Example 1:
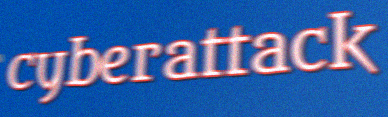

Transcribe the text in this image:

cyberattack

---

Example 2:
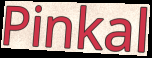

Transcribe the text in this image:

Pinkal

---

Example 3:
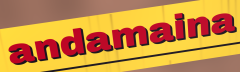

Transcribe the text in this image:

andamaina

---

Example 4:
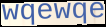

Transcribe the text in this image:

wqewqe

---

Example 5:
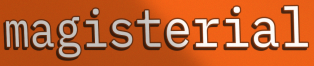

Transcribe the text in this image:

magisterial